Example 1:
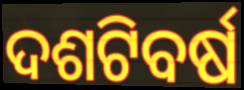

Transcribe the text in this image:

ଦଶଟିବର୍ଷ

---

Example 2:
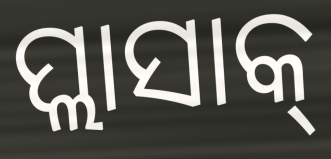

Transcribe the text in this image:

ପ୍ଲାସାକ୍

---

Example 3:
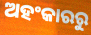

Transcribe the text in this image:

ଅହଂକାରରୁ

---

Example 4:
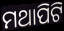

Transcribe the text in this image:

ମଥାପିଟି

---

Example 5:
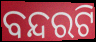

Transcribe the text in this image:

ବନ୍ଦରଟି